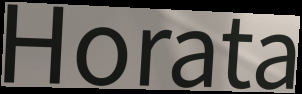
Horata